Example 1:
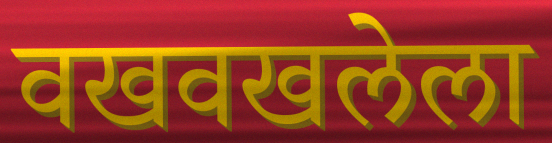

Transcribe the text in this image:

वखवखलेला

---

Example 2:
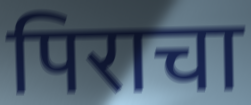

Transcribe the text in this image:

पिराचा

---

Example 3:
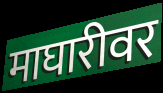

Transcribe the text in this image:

माघारीवर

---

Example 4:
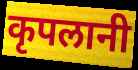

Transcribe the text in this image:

कृपलानी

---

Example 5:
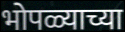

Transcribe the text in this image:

भोपळ्याच्या